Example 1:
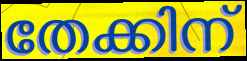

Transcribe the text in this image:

തേക്കിന്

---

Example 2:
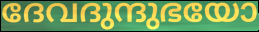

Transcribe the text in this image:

ദേവദുന്ദുഭയോ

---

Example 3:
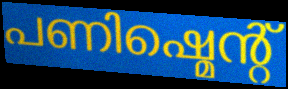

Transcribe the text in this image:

പണിഷ്മെന്റ്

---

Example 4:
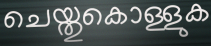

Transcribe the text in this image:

ചെയ്തുകൊള്ളുക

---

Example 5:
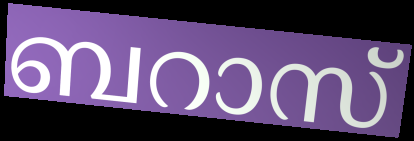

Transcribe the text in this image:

ബറാസ്